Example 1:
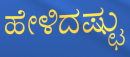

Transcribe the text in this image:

ಹೇಳಿದಷ್ಟು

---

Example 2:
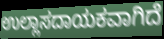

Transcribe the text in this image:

ಉಲ್ಲಾಸದಾಯಕವಾಗಿದೆ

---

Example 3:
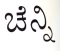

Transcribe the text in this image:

ಚೆನ್ನಿ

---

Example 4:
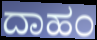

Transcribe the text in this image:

ದಾಹಂ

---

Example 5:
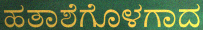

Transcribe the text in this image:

ಹತಾಶೆಗೊಳಗಾದ